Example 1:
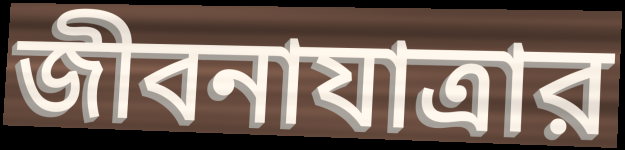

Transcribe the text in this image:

জীবনাযাত্রার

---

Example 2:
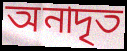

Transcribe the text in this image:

অনাদৃত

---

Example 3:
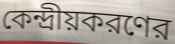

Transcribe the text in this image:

কেন্দ্রীয়করণের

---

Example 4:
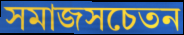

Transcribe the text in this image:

সমাজসচেতন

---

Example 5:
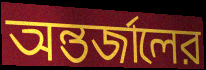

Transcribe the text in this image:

অন্তর্জালের